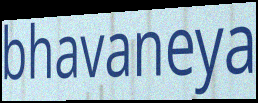
bhavaneya